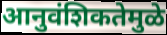
आनुवंशिकतेमुळे